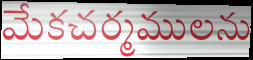
మేకచర్మములను